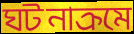
ঘটনাক্ৰমে